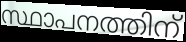
സ്ഥാപനത്തിന്